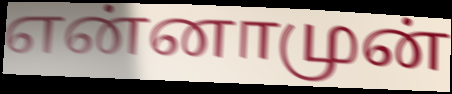
என்னாமுன்